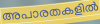
അപാരതകളിൽ